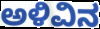
ಅಳಿವಿನ